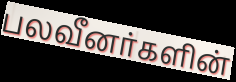
பலவீனர்களின்